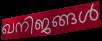
ഖനിജങ്ങൾ